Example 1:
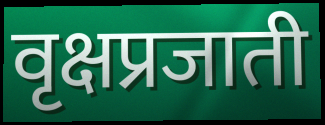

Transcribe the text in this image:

वृक्षप्रजाती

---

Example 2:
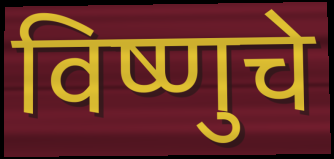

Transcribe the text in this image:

विष्णुचे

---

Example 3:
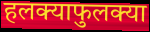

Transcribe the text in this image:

हलक्याफुलक्या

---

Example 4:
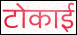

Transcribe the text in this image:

टोकाई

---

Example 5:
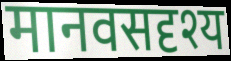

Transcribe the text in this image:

मानवसदृश्य